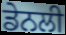
ਡੇਨਲੀ